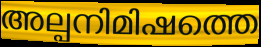
അല്പനിമിഷത്തെ